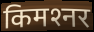
किमश्नर